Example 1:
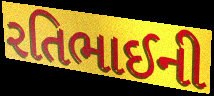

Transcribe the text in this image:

રતિભાઈની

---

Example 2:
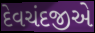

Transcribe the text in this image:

દેવચંદજીએ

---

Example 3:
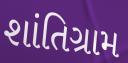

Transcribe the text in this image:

શાંતિગ્રામ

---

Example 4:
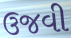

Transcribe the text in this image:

ઉજવી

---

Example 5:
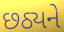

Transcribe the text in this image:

છઠ્યને